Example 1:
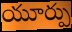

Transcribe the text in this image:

యూర్పు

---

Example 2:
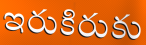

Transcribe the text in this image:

ఇరుకిరుకు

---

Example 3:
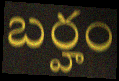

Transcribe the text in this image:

బర్హం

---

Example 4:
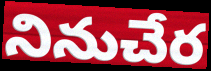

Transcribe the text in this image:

నినుచేర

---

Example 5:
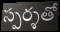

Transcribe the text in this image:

స్పర్శతో